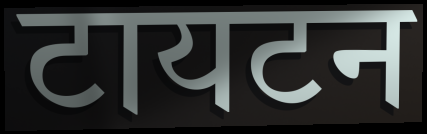
टायटन